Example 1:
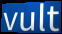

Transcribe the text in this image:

vult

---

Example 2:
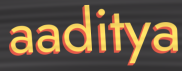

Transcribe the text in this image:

aaditya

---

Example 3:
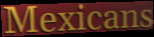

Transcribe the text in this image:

Mexicans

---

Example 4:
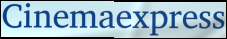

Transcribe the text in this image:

Cinemaexpress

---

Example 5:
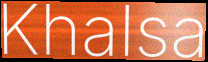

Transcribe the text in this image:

Khalsa